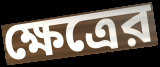
ক্ষেত্রের